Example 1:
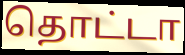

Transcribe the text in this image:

தொட்டா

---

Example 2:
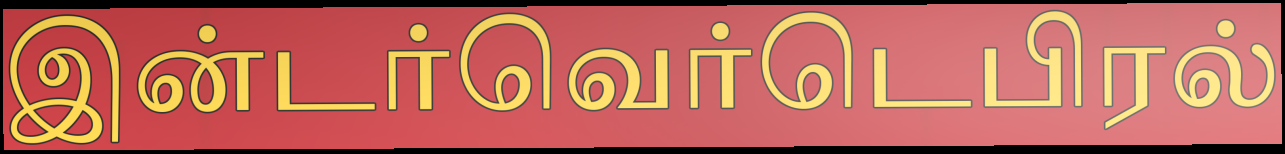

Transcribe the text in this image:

இன்டர்வெர்டெபிரல்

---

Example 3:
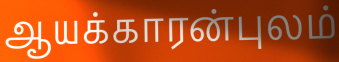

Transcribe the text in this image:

ஆயக்காரன்புலம்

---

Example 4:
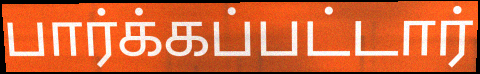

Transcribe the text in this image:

பார்க்கப்பட்டார்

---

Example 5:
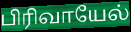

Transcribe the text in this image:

பிரிவாயேல்